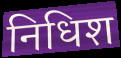
निधिश